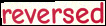
reversed